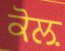
ਕੋਲ਼